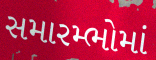
સમારમ્ભોમાં